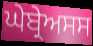
ਘੇਬ੍ਰੇਅਸਸ